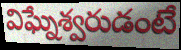
విఘ్నేశ్వరుడంటే